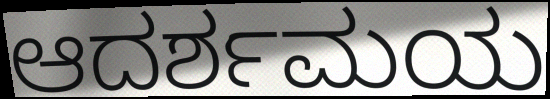
ಆದರ್ಶಮಯ